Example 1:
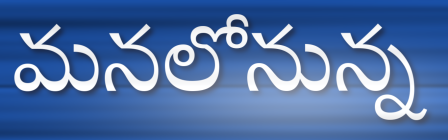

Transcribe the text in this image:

మనలోనున్న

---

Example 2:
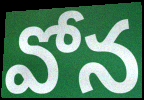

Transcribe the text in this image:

వోన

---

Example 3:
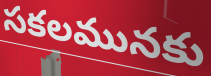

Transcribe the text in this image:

సకలమునకు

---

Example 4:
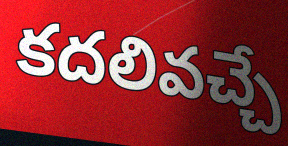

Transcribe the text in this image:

కదలివచ్చే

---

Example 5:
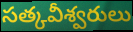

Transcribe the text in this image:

సత్కవీశ్వరులు